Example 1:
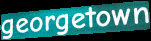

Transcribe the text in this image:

georgetown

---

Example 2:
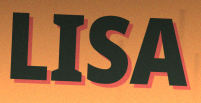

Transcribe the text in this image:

LISA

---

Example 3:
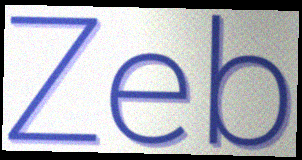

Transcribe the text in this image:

Zeb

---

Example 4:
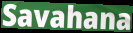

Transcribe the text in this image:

Savahana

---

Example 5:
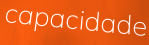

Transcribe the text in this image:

capacidade